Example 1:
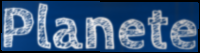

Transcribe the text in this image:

Planete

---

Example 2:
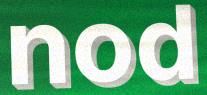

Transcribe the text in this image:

nod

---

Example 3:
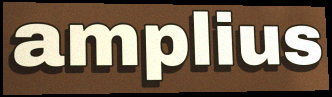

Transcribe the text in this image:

amplius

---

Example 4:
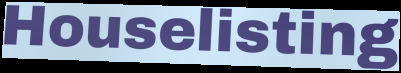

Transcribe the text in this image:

Houselisting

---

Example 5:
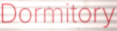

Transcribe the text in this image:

Dormitory